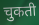
चुकती